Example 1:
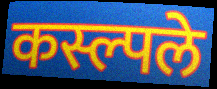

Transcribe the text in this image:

कस्ल्पले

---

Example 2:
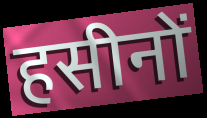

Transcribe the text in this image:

हसीनों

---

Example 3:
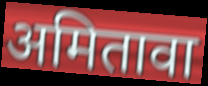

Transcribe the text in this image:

अमितावा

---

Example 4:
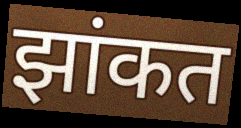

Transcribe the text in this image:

झांकत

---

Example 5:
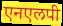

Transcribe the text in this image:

एनएलपी